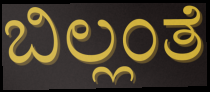
ಬಿಲ್ಲಂತೆ